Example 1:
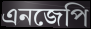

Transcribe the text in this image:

এনজেপি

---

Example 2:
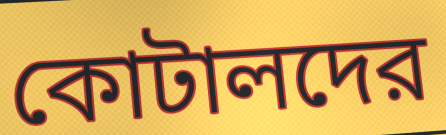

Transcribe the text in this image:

কোটালদের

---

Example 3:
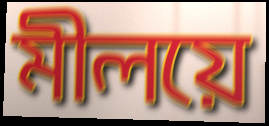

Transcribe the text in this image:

মীলয়ে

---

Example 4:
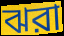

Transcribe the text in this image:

ঝরা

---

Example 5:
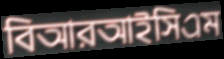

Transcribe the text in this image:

বিআরআইসিএম